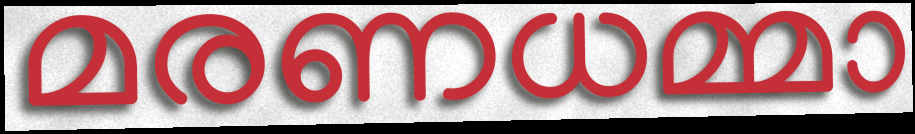
മരണധമ്മാ